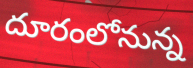
దూరంలోనున్న